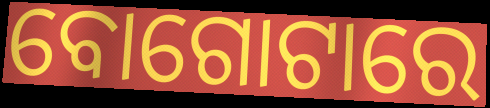
ବୋଗୋଟାରେ